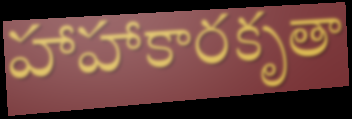
హాహాకారకృతా